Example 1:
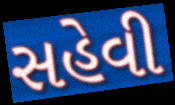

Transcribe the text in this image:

સહેવી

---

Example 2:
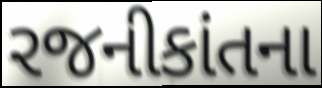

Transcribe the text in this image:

રજનીકાંતના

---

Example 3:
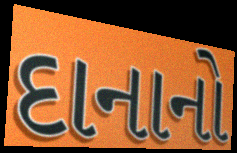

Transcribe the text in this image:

દાનાનો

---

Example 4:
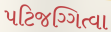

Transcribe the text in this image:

પટિજગ્ગિત્વા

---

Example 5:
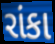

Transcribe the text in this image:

રાંકા